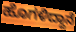
ಹೊಗಳಿದ್ದಾನೆ